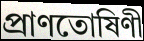
প্ৰাণতোষিণী